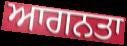
ਆਗਨਤਾ